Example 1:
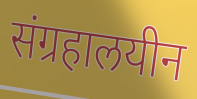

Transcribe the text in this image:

संग्रहालयीन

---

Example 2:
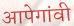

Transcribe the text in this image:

आपेगांवी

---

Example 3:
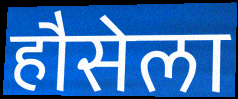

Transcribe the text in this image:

हौसेला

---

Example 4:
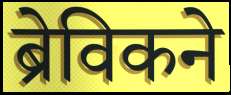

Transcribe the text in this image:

ब्रेविकने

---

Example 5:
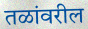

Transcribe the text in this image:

तळांवरील